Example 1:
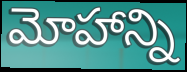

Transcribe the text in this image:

మోహాన్ని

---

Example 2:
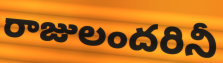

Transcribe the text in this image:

రాజులందరినీ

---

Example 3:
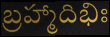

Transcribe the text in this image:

బ్రహ్మాదిభిః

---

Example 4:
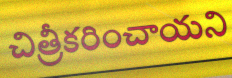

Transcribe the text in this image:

చిత్రీకరించాయని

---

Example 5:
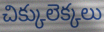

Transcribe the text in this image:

చిక్కులెక్కలు